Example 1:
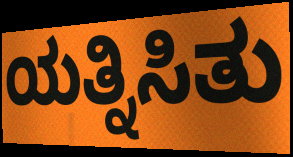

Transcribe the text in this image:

ಯತ್ನಿಸಿತು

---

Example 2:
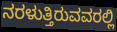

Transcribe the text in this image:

ನರಳುತ್ತಿರುವವರಲ್ಲಿ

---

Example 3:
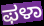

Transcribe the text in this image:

ಫಳಾ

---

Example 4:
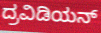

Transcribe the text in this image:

ದ್ರವಿಡಿಯನ್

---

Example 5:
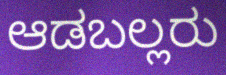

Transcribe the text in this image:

ಆಡಬಲ್ಲರು